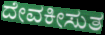
ದೇವಕೀಸುತ